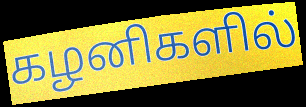
கழனிகளில்